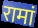
रामां